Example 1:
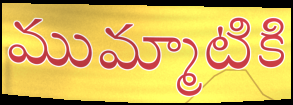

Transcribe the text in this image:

ముమ్మాటికి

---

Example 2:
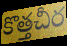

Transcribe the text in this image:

కొత్తచీర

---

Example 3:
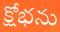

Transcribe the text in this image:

క్షోభను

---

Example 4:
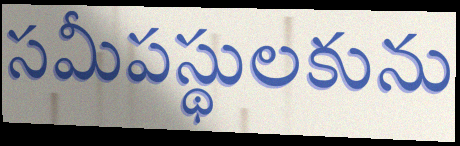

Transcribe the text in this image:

సమీపస్థులకును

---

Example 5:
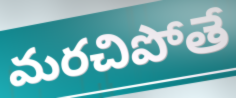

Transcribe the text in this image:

మరచిపోతే